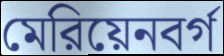
মেরিয়েনবর্গ